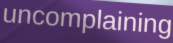
uncomplaining